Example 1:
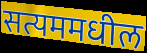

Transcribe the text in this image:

सत्यममधील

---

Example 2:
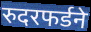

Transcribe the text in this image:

रुदरफर्डने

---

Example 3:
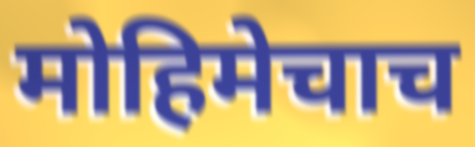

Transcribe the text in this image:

मोहिमेचाच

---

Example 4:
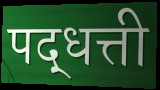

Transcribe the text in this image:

पद्धत्ती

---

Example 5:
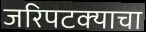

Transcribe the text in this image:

जरिपटक्याचा